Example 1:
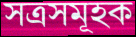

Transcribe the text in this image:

সত্ৰসমূহক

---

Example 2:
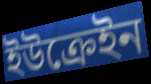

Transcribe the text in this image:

ইউক্ৰেইন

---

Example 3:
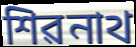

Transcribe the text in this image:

শিৱনাথ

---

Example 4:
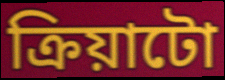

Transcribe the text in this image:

ক্ৰিয়াটো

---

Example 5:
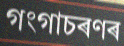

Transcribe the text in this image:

গংগাচৰণৰ